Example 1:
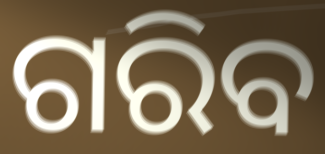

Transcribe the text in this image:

ଗରିବ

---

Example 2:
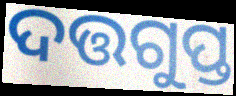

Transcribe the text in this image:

ଦତ୍ତଗୁପ୍ତ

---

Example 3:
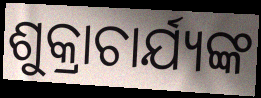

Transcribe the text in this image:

ଶୁକ୍ରାଚାର୍ଯ୍ୟଙ୍କ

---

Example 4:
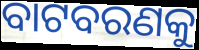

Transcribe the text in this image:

ବାଟବରଣକୁ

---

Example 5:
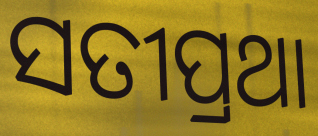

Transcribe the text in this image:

ସତୀପ୍ରଥା